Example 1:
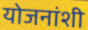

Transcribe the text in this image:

योजनांशी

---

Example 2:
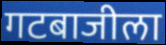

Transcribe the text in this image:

गटबाजीला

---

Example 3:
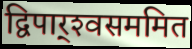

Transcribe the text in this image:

द्विपार्श्वसममित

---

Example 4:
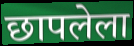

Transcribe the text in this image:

छापलेला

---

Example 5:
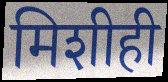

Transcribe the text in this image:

मिशीही